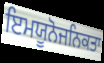
ਇਮਯੂਨੋਜਨਿਕਤਾ